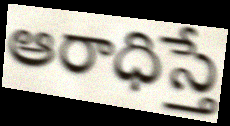
ఆరాధిస్తే